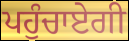
ਪਹੁੰਚਾਏਗੀ